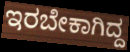
ಇರಬೇಕಾಗಿದ್ದ